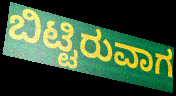
ಬಿಟ್ಟಿರುವಾಗ